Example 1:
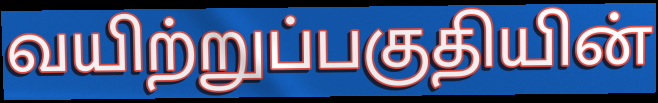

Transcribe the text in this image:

வயிற்றுப்பகுதியின்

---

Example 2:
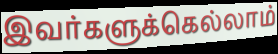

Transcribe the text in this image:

இவர்களுக்கெல்லாம்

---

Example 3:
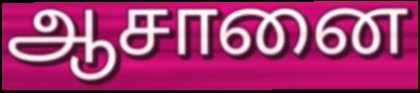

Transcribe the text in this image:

ஆசானை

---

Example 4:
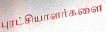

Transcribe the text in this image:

புரட்சியாளர்களை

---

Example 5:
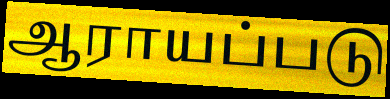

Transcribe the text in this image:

ஆராயப்படு